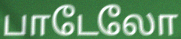
பாடேலோ